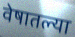
वेषातल्या